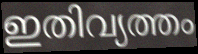
ഇതിവ്യത്തം